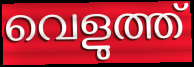
വെളുത്ത്